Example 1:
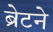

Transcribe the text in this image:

ब्रेटने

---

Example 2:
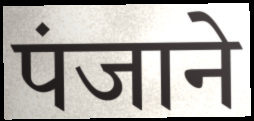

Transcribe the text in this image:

पंजाने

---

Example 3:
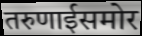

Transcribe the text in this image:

तरुणाईसमोर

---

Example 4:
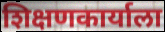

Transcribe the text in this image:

शिक्षणकार्याला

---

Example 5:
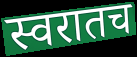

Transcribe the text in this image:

स्वरातच